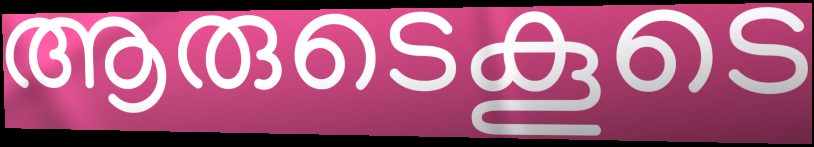
ആരുടെകൂടെ